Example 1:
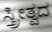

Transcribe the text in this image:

ಸ್ತ್ರೀತ್ವದ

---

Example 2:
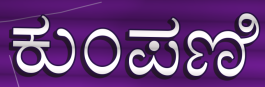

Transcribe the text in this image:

ಕುಂಪಣಿ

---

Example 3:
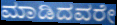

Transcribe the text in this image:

ಮಾಡಿದವರೇ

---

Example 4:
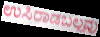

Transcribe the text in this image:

ಉಸಿರಾಡಬಲ್ಲವು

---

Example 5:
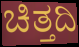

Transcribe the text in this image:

ಚಿತ್ತದಿ